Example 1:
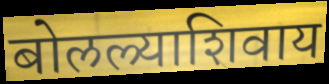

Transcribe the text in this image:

बोलल्याशिवाय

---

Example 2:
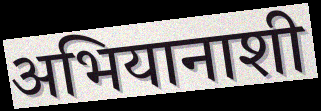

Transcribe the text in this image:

अभियानाशी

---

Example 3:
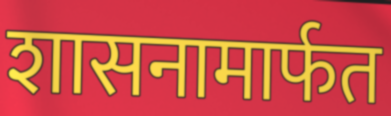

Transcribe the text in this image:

शासनामार्फत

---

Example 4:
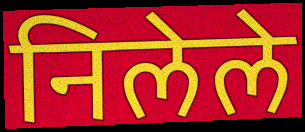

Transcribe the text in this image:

निलेले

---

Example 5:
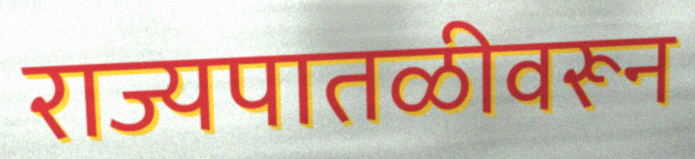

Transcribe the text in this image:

राज्यपातळीवरून